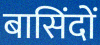
बासिंदों